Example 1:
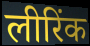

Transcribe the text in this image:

लीरिंक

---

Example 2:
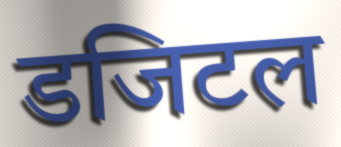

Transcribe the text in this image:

डजिटल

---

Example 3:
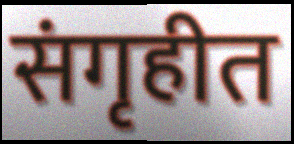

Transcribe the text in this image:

संगृहीत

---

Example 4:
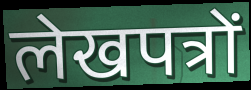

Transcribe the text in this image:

लेखपत्रों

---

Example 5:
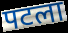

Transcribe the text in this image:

पटला